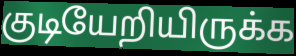
குடியேறியிருக்க